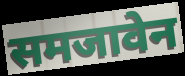
समजावेन